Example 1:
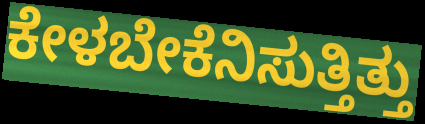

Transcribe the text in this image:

ಕೇಳಬೇಕೆನಿಸುತ್ತಿತ್ತು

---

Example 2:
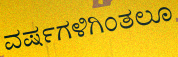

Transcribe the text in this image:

ವರ್ಷಗಳಿಗಿಂತಲೂ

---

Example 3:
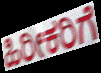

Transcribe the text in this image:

ಹಿರೀಕರಿಗೆ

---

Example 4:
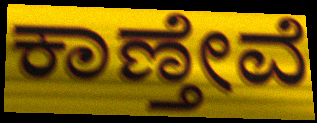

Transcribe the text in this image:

ಕಾಣ್ತೇವೆ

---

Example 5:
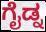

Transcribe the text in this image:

ಗೈಡ್ನ